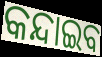
କନ୍ଦାଇବ